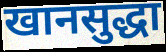
खानसुद्धा